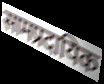
सामप्रदायिक